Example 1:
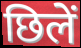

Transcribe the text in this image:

छिलें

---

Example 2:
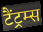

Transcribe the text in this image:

टैंट्रम्स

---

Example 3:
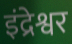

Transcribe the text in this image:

इंद्रेश्वर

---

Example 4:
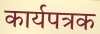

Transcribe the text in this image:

कार्यपत्रक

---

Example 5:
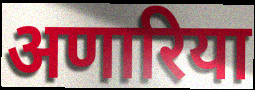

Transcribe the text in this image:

अणारिया